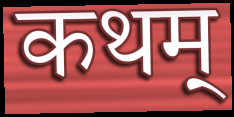
कथम्